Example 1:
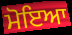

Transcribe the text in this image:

ਮੋਇਆ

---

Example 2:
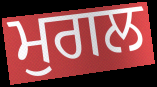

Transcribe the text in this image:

ਮੁਗਲ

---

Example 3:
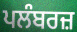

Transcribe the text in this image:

ਪਲੰਬਰਜ਼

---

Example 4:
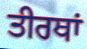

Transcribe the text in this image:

ਤੀਰਥਾਂ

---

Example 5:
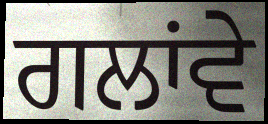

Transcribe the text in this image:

ਗਲਾਂਵੇ